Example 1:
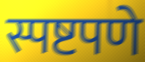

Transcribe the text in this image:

स्पष्टपणे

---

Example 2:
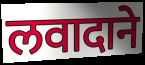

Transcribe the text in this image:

लवादाने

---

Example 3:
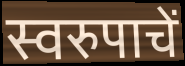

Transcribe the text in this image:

स्वरुपाचें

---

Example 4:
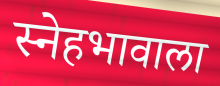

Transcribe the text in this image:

स्नेहभावाला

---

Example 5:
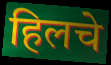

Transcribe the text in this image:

हिलचे